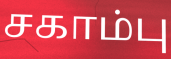
சகாம்பு